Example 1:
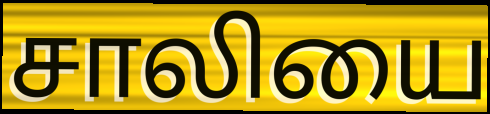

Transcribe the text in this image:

சாலியை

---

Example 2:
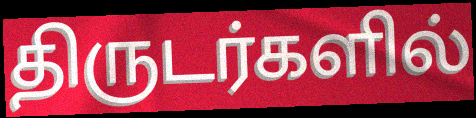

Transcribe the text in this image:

திருடர்களில்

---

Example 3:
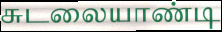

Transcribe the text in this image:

சுடலையாண்டி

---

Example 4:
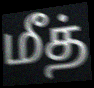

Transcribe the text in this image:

மீத்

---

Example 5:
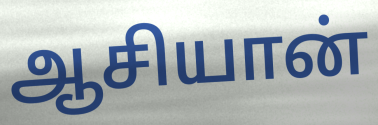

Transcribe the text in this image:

ஆசியான்